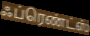
ஃப்ரெண்ட்ஸ்